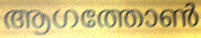
ആഗത്തോൺ